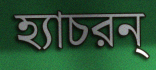
হ্যাচরন্